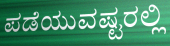
ಪಡೆಯುವಷ್ಟರಲ್ಲಿ